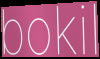
bokil